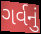
ગર્વનું